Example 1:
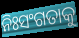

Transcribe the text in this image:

ନିଃସଂଗତାକୁ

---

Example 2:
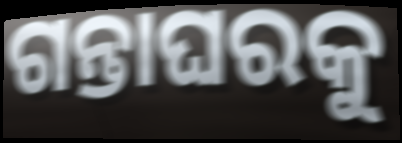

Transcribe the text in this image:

ଗନ୍ତାଘରକୁ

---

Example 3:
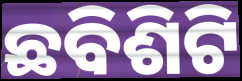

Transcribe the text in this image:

ଛବିଶିଟି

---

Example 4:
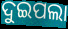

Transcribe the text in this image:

ଦୁଇପଲା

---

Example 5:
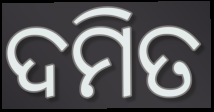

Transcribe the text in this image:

ଦମିତ